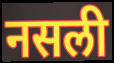
नसली